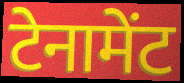
टेनामेंट